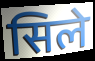
सिले